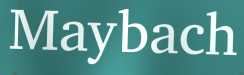
Maybach